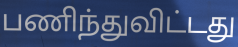
பணிந்துவிட்டது